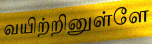
வயிற்றினுள்ளே